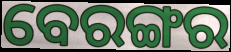
ବେରଙ୍ଗର